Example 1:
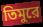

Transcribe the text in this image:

তিমুরে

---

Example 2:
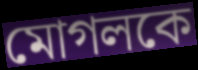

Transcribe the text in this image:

মোগলকে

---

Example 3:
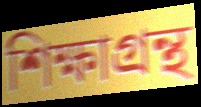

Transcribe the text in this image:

শিক্ষাগ্রন্থ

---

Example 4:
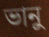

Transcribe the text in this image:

ভানু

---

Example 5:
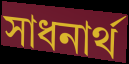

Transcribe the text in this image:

সাধনার্থ